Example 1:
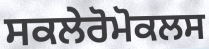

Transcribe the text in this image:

ਸਕਲੇਰੋਮੋਕਲਸ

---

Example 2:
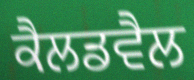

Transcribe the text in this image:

ਕੈਲਡਵੈਲ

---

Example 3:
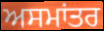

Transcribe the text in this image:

ਅਸਮਾਂਤਰ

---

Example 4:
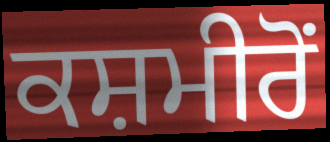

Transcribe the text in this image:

ਕਸ਼ਮੀਰੋਂ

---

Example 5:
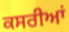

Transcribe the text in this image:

ਕਸਰੀਆਂ